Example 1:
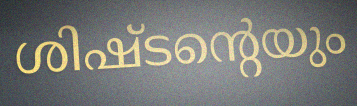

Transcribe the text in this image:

ശിഷ്ടന്റെയും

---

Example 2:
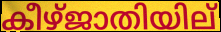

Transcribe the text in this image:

കീഴ്ജാതിയില്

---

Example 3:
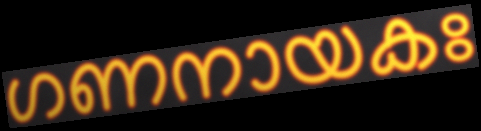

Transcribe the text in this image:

ഗണനായകഃ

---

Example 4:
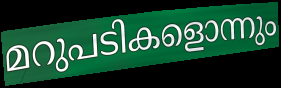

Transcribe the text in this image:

മറുപടികളൊന്നും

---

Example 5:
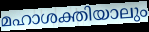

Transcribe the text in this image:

മഹാശക്തിയാലും